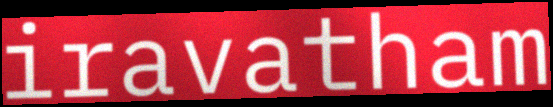
iravatham